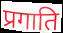
प्रगाति